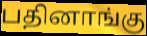
பதினாங்கு